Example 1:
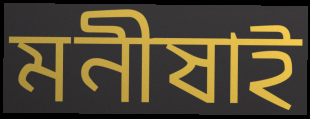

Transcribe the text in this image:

মনীষাই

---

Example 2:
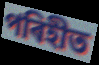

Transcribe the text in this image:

পৰিহীত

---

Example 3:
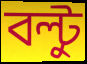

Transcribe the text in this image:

বল্টু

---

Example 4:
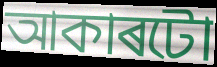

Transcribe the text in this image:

আকাৰটো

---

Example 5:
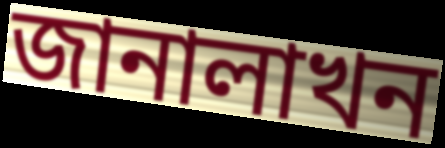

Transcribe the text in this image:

জানালাখন